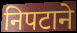
निपटाने